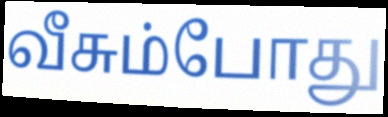
வீசும்போது